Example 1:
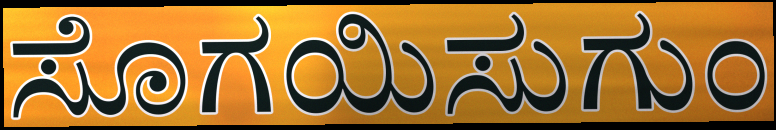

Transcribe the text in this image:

ಸೊಗಯಿಸುಗುಂ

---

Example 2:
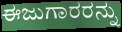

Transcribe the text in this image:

ಈಜುಗಾರರನ್ನು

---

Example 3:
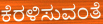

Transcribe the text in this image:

ಕೆರಳಿಸುವಂತೆ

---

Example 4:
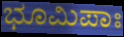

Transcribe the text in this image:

ಭೂಮಿಪಾಃ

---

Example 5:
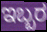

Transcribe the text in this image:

ಇಬ್ಬರ